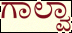
ಗಾಲ್ವಾ